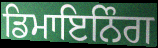
ਡਿਮਾਇਨਿੰਗ